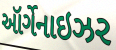
ઑર્ગેનાઇઝર